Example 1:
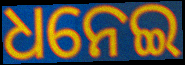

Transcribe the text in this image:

ଧନେଇ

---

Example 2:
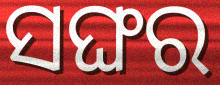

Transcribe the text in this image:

ସଙ୍ଘର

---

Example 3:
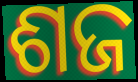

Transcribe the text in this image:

ଶଜ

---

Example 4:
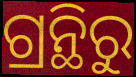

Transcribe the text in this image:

ଗ୍ରନ୍ଥିରୁ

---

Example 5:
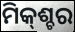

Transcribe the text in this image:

ମିକ୍‌ଶ୍ଚର